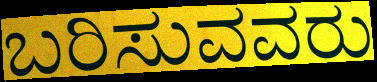
ಬರಿಸುವವರು